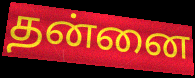
தன்னை